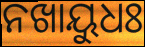
ନଖାୟୁଧଃ